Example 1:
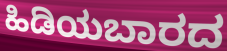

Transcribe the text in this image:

ಹಿಡಿಯಬಾರದ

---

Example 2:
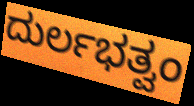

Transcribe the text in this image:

ದುರ್ಲಭತ್ವಂ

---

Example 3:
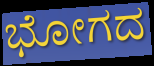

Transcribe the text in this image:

ಭೋಗದ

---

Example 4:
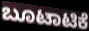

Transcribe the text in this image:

ಬೂಟಾಟಿಕೆ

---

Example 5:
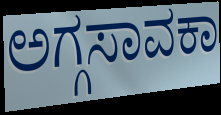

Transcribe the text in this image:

ಅಗ್ಗಸಾವಕಾ